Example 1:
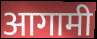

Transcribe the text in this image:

आगामी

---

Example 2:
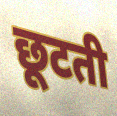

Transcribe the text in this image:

छूटती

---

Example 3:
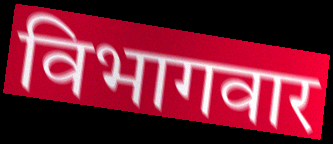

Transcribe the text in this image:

विभागवार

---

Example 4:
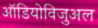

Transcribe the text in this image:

ऑडियोविजुअल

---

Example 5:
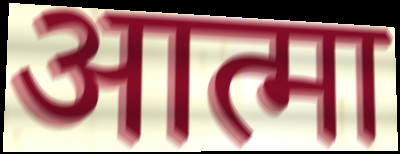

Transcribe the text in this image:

आत्मा